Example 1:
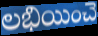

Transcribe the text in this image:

లభియించె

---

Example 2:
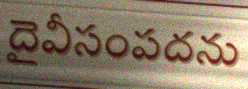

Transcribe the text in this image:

దైవీసంపదను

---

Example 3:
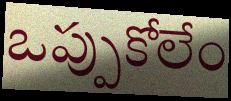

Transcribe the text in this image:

ఒప్పుకోలేం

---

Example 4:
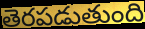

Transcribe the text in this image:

తెరపడుతుంది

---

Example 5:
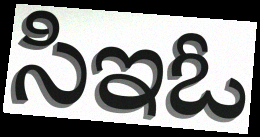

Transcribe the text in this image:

సిఇఓ